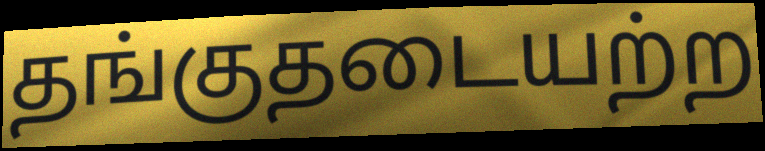
தங்குதடையற்ற